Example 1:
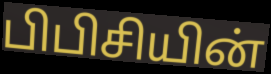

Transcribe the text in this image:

பிபிசியின்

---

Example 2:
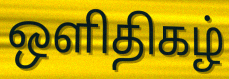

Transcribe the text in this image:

ஒளிதிகழ்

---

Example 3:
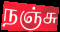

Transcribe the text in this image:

நஞ்சு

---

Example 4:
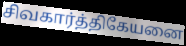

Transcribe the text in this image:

சிவகார்த்திகேயனை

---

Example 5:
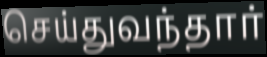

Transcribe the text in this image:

செய்துவந்தார்